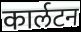
कार्लटन